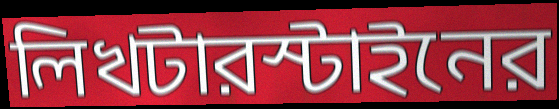
লিখটারস্টাইনের